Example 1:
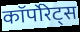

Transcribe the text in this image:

कॉर्पोरेट्स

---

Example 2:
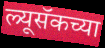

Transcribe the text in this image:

ल्यूसॅकच्या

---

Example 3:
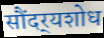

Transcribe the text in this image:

सौंदर्यशोध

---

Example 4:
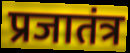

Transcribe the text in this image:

प्रजातंत्र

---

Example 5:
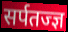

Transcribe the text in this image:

सर्पतज्ज्ञ